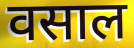
वसाल